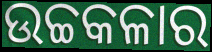
ଉଚ୍ଚକଳାର